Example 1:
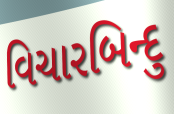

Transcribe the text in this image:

વિચારબિન્દુ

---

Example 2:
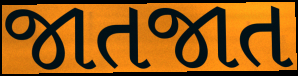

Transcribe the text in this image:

જાતજાત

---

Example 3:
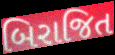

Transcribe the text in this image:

બિરાજિત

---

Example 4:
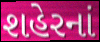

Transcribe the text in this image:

શહેરનાં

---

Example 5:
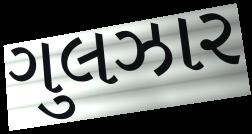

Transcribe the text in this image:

ગુલઝાર